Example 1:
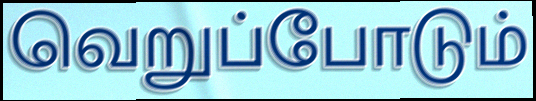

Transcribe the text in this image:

வெறுப்போடும்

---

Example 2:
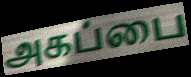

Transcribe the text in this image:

அகப்பை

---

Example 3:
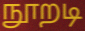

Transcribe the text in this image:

நூறடி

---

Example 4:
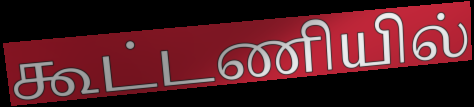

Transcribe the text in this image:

கூட்டணியில்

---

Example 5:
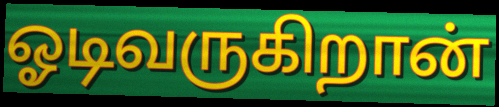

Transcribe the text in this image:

ஓடிவருகிறான்